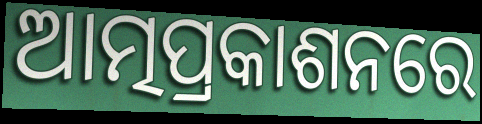
ଆତ୍ମପ୍ରକାଶନରେ